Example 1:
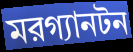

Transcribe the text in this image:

মরগ্যানটন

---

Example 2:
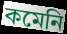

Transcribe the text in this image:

কমেনি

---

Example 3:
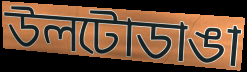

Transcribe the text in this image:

উলটোডাঙা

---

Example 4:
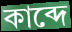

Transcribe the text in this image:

কাব্দে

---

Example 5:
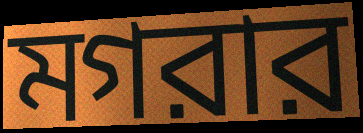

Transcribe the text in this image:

মগরার